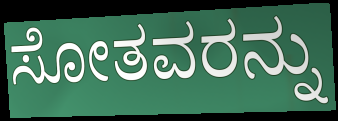
ಸೋತವರನ್ನು